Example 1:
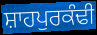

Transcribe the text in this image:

ਸ਼ਾਹਪੁਰਕੰਢੀ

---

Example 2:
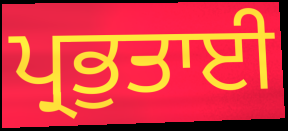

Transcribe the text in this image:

ਪ੍ਰਭੁਤਾਈ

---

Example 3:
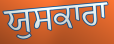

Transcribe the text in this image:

ਯੁਸਕਾਰਾ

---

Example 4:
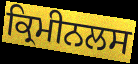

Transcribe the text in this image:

ਕ੍ਰਿਮੀਨਲਸ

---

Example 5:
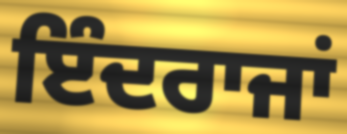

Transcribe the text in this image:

ਇੰਦਰਾਜਾਂ